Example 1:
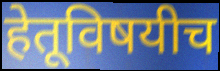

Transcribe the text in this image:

हेतूविषयीच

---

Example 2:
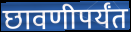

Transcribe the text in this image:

छावणीपर्यंत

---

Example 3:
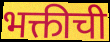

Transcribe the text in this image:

भक्तीची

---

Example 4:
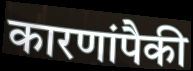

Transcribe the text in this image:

कारणांपैकी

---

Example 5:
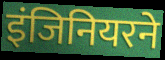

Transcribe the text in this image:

इंजिनियरने